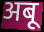
अबू